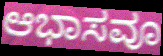
ಆಭಾಸವೂ